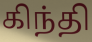
கிந்தி